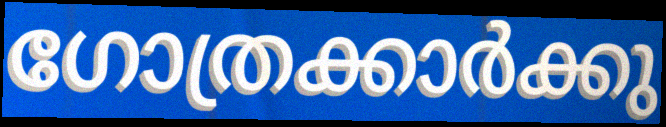
ഗോത്രക്കാർക്കു